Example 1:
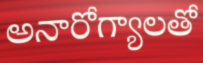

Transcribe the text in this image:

అనారోగ్యాలతో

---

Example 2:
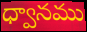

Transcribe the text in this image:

ధ్వానము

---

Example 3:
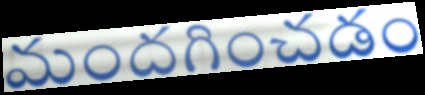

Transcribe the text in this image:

మందగించడం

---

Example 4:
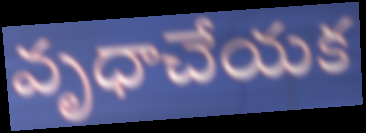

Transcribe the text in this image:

వృధాచేయక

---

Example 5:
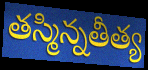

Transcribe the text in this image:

తస్మిన్నతీత్య